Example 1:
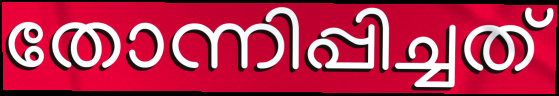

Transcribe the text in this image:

തോന്നിപ്പിച്ചത്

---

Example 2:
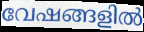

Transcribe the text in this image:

വേഷങ്ങളിൽ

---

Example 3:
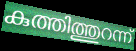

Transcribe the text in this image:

കുത്തിത്തുറന്ന്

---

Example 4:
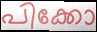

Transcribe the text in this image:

പിക്കോ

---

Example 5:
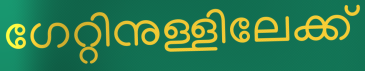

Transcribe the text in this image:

ഗേറ്റിനുള്ളിലേക്ക്